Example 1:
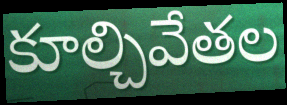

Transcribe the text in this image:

కూల్చివేతల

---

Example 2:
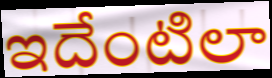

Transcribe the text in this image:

ఇదేంటిలా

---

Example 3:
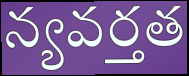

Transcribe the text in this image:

న్యవర్తత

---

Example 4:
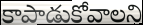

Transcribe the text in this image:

కాపాడుకోవాలని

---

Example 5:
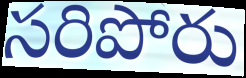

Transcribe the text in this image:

సరిపోరు